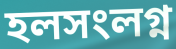
হলসংলগ্ন